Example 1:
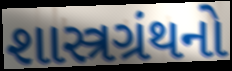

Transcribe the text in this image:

શાસ્ત્રગ્રંથનો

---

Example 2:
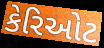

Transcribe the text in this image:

કેરિઓટ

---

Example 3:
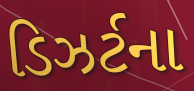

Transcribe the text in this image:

ડિઝર્ટના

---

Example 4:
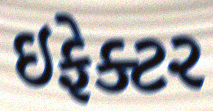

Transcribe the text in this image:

ઇફેક્ટર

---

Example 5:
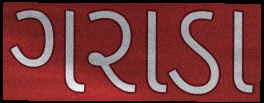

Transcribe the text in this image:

ગરાડા